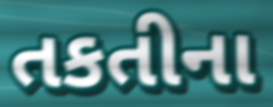
તકતીના